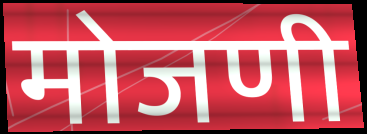
मोजणी